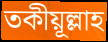
তকীয়ূল্লাহ